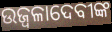
ଉଜ୍ୱଳାଦେବୀଙ୍କ